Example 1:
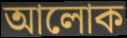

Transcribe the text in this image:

আলোক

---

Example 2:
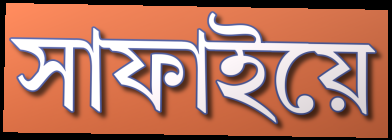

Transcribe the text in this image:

সাফাইয়ে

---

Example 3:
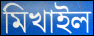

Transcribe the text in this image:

মিখাইল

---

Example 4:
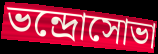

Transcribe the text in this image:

ভন্দ্রোসোভা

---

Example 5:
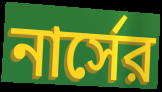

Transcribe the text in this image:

নার্সের